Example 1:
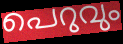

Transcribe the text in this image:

പെറുവും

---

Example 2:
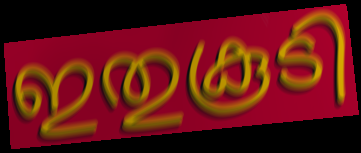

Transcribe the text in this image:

ഇതുകൂടി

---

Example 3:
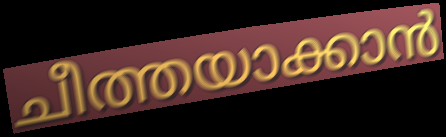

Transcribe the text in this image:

ചീത്തയാക്കാൻ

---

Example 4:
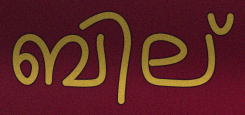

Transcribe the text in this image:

ബില്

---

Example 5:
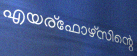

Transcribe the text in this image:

എയര്ഫോഴ്സിന്റെ